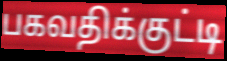
பகவதிக்குட்டி